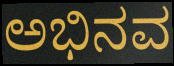
ಅಭಿನವ